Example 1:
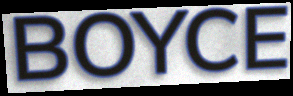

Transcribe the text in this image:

BOYCE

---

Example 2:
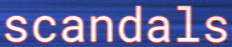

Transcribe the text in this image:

scandals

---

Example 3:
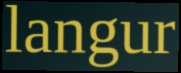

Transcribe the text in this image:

langur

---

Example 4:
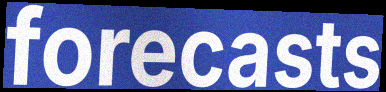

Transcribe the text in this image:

forecasts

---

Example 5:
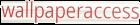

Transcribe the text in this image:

wallpaperaccess